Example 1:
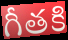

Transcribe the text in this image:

గీతకి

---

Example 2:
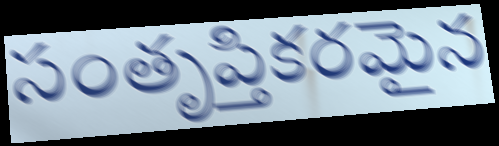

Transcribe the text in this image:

సంతృప్తికరమైన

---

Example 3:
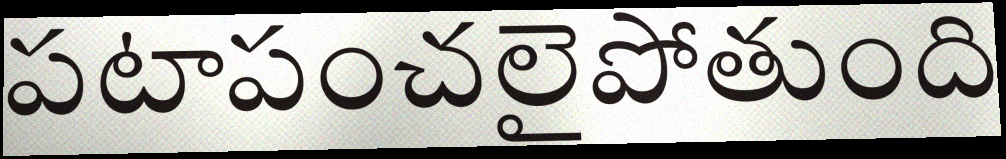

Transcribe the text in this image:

పటాపంచలైపోతుంది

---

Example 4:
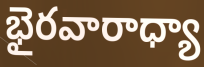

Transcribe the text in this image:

భైరవారాధ్యా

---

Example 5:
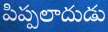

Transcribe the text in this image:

పిప్పలాదుడు